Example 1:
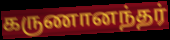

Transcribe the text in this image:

கருணானந்தர்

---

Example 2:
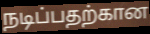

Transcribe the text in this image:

நடிப்பதற்கான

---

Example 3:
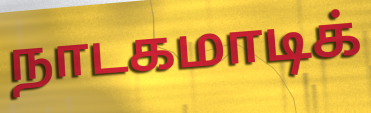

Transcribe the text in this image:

நாடகமாடிக்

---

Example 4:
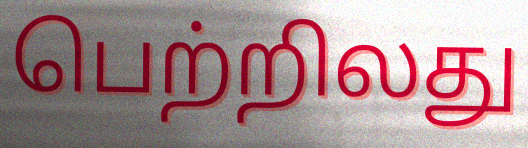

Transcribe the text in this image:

பெற்றிலது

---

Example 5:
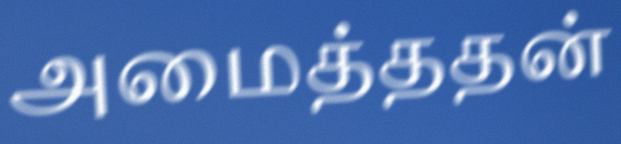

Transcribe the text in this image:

அமைத்ததன்